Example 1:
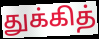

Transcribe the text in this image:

துக்கித்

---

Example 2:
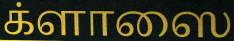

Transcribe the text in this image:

க்ளாஸை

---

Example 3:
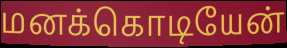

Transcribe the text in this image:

மனக்கொடியேன்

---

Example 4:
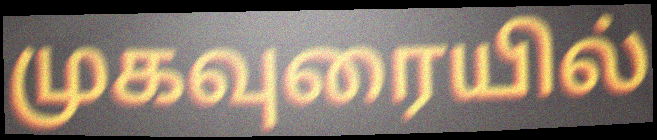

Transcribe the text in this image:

முகவுரையில்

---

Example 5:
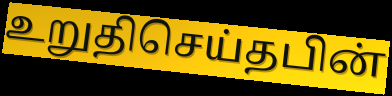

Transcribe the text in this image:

உறுதிசெய்தபின்